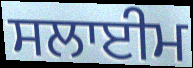
ਸਲਾਈਮ